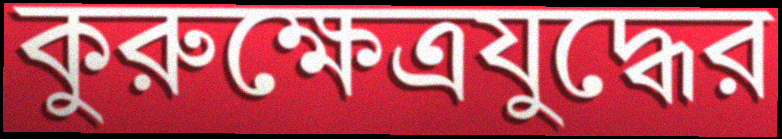
কুরুক্ষেত্রযুদ্ধের